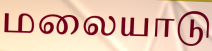
மலையாடு